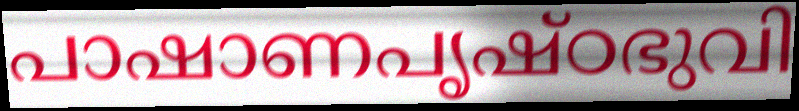
പാഷാണപൃഷ്ഠഭുവി